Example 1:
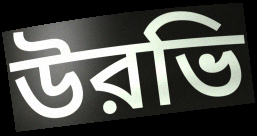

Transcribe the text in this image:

উরভি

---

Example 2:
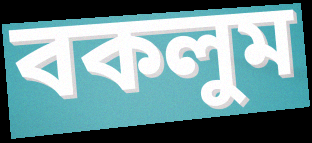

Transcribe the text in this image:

বকলুম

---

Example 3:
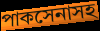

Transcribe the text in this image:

পাকসেনাসহ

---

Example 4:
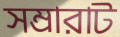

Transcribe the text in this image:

সম্রারাট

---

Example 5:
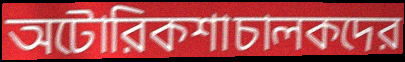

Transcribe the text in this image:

অটোরিকশাচালকদের